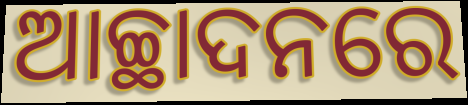
ଆଚ୍ଛାଦନରେ